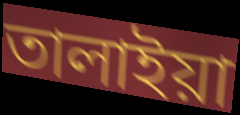
তালাইয়া